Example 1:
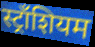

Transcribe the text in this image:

स्ट्राँशियम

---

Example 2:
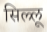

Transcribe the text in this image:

सिल्लू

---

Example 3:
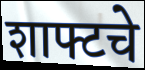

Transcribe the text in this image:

शाफ्टचे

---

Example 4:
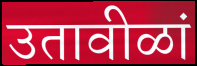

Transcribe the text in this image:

उतावीळां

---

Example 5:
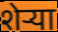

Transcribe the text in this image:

शेऱ्या